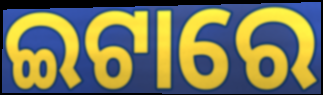
ଇଟାରେ